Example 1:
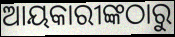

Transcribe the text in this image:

ଆୟକାରୀଙ୍କଠାରୁ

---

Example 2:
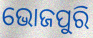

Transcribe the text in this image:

ଭୋଜପୁରି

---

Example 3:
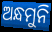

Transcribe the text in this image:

ଅନ୍ଧମୁନି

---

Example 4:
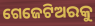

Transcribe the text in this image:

ଗେଜେଟିଅରକୁ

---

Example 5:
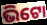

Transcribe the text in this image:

ଭିଟୋ